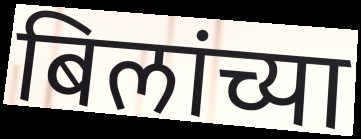
बिलांच्या